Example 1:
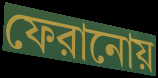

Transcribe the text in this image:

ফেরানোয়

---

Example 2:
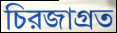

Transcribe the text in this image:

চিরজাগ্রত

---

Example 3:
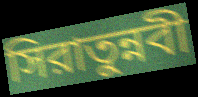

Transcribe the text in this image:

সিরাতুন্নবী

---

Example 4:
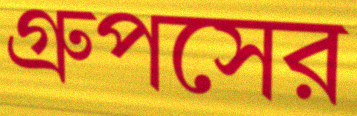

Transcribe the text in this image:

গ্রুপসের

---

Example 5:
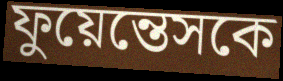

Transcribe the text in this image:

ফুয়েন্তেসকে